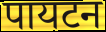
पायटन